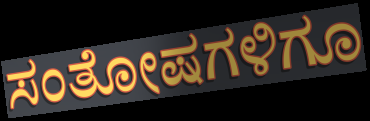
ಸಂತೋಷಗಳಿಗೂ